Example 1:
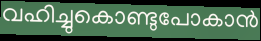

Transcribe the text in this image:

വഹിച്ചുകൊണ്ടുപോകാൻ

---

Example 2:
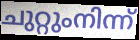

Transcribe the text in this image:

ചുറ്റുംനിന്ന്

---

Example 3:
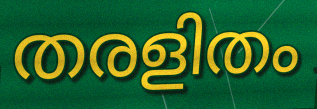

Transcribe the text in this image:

തരളിതം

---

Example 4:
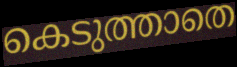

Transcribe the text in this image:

കെടുത്താതെ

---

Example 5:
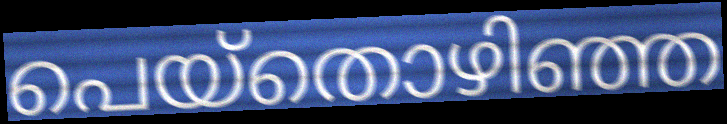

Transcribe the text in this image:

പെയ്തൊഴിഞ്ഞ